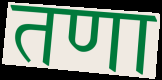
तणा